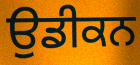
ਉਡੀਕਨ